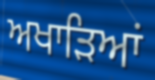
ਅਖਾੜਿਆਂ